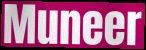
Muneer